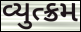
વ્યુત્ક્રમ